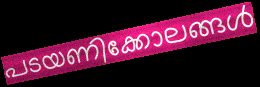
പടയണിക്കോലങ്ങൾ